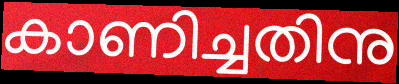
കാണിച്ചതിനു